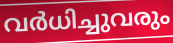
വർധിച്ചുവരും